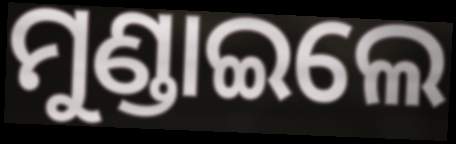
ମୁଣ୍ଡାଇଲେ